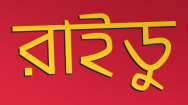
রাইডু